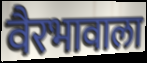
वैरभावाला